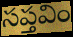
సప్తవిం